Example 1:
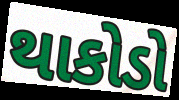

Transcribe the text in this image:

થાકોડો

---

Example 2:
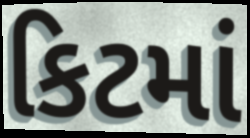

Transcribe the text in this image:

કિટમાં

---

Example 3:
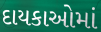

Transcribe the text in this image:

દાયકાઓમાં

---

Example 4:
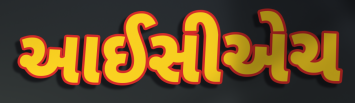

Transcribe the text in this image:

આઈસીએચ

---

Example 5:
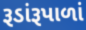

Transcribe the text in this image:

રૂડાંરૂપાળાં